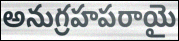
అనుగ్రహపరాయై